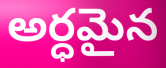
అర్ధమైన